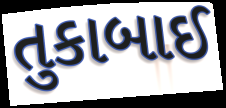
તુકાબાઈ